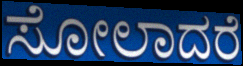
ಸೋಲಾದರೆ